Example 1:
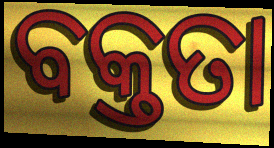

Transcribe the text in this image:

ବକ୍ତତା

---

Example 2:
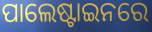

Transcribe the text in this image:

ପାଲେଷ୍ଟାଇନରେ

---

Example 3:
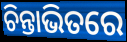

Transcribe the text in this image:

ଚିନ୍ତାଭିତରେ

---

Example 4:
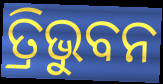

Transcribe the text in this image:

ତ୍ରିଭୁବନ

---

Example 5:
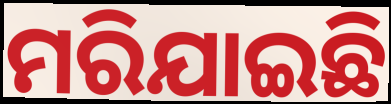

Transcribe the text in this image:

ମରିଯାଇଛି